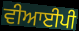
ਵੀਆਈਪੀ